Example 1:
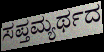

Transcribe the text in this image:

ಸಪ್ತಮ್ಯರ್ಥದ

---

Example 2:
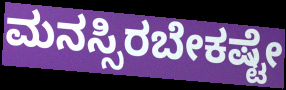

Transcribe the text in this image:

ಮನಸ್ಸಿರಬೇಕಷ್ಟೇ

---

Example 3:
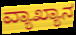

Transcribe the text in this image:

ವ್ಯಾಖ್ಯಾನ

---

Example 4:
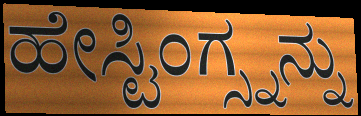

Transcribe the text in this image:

ಹೇಸ್ಟಿಂಗ್ಸ್ನನ್ನು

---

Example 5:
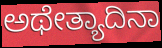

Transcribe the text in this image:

ಅಥೇತ್ಯಾದಿನಾ